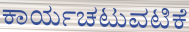
ಕಾರ್ಯಚಟುವಟಿಕೆ